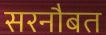
सरनौबत